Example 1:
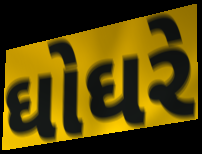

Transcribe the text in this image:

ઘોઘરે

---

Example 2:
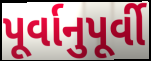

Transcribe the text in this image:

પૂર્વાનુપૂર્વી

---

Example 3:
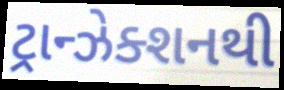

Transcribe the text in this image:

ટ્રાન્ઝેક્શનથી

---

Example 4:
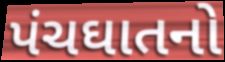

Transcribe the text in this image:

પંચઘાતનો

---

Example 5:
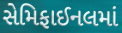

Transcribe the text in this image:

સેમિફાઈનલમાં